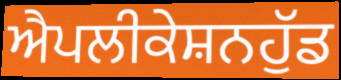
ਐਪਲੀਕੇਸ਼ਨਹੁੱਡ